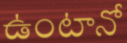
ఉంటానో